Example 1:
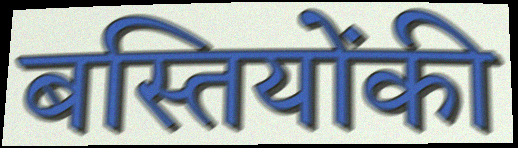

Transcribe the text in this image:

बस्तियोंकी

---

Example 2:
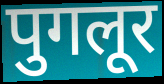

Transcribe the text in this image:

पुगलूर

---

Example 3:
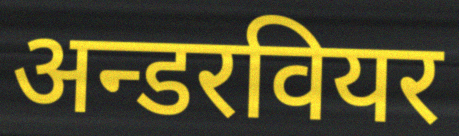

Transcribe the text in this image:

अन्डरवियर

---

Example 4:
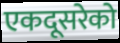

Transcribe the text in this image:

एकदूसरेको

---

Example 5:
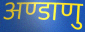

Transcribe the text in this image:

अण्डाणु